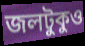
জলটুকুও